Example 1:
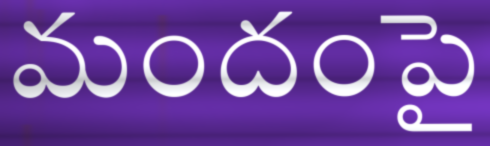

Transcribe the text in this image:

మందంపై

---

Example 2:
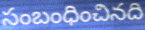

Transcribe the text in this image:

సంబంధించినది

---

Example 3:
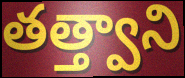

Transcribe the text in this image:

తత్త్వాని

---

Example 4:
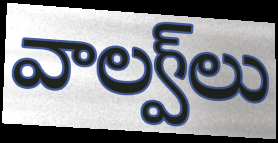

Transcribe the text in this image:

వాల్వ్‌లు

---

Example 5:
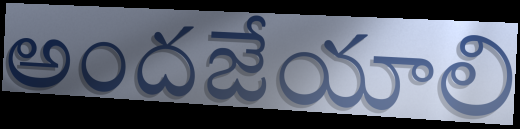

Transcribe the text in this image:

అందజేయాలి